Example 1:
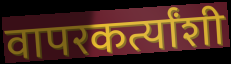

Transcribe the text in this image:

वापरकर्त्यांशी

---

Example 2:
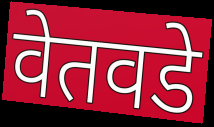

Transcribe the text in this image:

वेतवडे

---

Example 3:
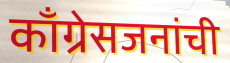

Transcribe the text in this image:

काँग्रेसजनांची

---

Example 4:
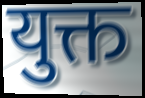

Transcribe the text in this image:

युक्त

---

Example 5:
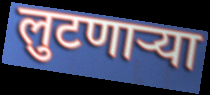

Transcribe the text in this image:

लुटणाऱ्या